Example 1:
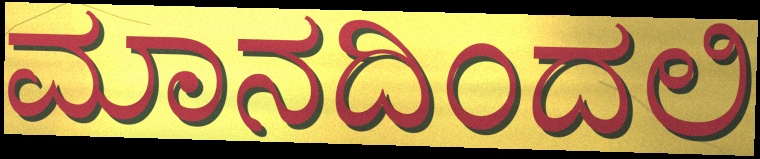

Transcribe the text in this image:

ಮಾನದಿಂದಲಿ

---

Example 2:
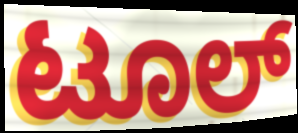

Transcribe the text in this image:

ಟೂಲ್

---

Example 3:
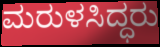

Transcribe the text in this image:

ಮರುಳಸಿದ್ಧರು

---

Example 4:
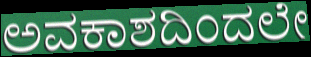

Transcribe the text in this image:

ಅವಕಾಶದಿಂದಲೇ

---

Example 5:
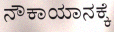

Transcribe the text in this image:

ನೌಕಾಯಾನಕ್ಕೆ